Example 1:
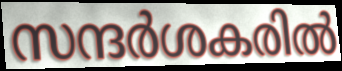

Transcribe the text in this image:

സന്ദർശകരിൽ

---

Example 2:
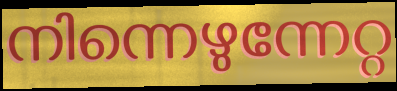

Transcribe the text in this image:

നിന്നെഴുന്നേറ്റ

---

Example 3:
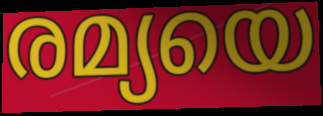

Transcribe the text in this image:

രമ്യയെ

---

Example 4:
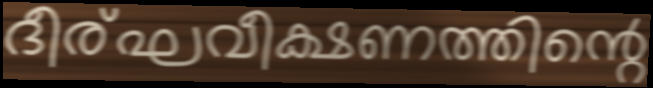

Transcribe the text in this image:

ദീര്ഘവീക്ഷണത്തിന്റെ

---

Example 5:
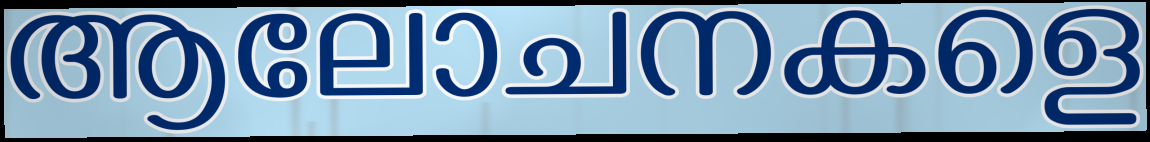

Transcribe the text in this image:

ആലോചനകളെ